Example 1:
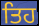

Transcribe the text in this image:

ਤਿਹ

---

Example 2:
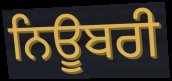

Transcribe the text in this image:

ਨਿਊਬਰੀ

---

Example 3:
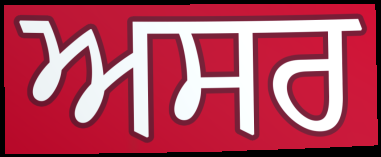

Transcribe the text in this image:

ਅਸਰ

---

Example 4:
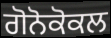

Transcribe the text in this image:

ਗੋਨੋਕੋਕਲ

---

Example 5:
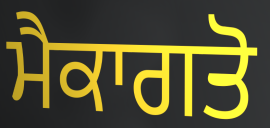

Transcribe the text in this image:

ਮੈਕਾਗਤੋ